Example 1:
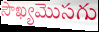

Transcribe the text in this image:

సౌఖ్యమొసగు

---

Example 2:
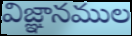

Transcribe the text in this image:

విజ్ఞానముల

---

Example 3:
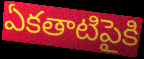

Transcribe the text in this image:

ఏకతాటిపైకి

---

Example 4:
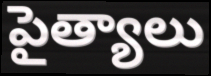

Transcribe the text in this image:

పైత్యాలు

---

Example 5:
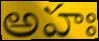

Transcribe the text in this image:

అహః